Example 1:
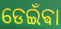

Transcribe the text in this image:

ଡେଇଁଵା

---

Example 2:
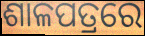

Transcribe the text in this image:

ଶାଳପତ୍ରରେ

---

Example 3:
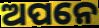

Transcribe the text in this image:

ଅପନେ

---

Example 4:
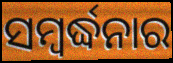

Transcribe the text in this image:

ସମ୍ବର୍ଦ୍ଧନାର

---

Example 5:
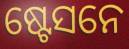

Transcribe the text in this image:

ଷ୍ଟେସନେ